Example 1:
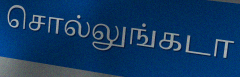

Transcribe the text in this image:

சொல்லுங்கடா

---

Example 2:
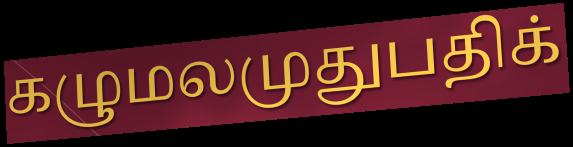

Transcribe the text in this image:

கழுமலமுதுபதிக்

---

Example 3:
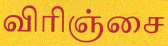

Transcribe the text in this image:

விரிஞ்சை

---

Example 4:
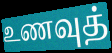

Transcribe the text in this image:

உணவுத்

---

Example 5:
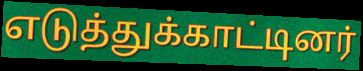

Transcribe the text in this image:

எடுத்துக்காட்டினர்